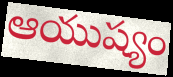
ఆయుష్యం